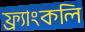
ফ্র্যাংকলি